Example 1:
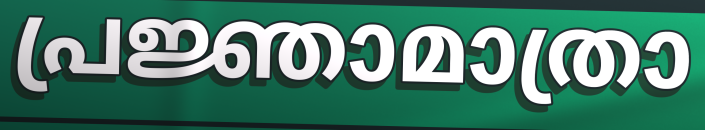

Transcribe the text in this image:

പ്രജ്ഞാമാത്രാ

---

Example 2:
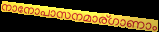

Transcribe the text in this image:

നാനോപാസനമാര്ഗാണാം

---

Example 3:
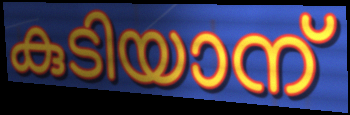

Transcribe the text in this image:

കുടിയാന്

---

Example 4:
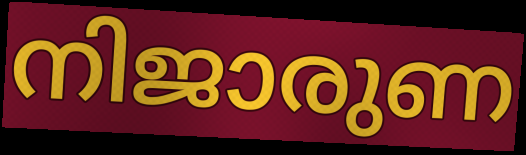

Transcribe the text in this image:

നിജാരുണ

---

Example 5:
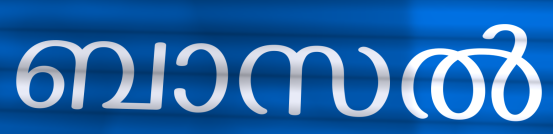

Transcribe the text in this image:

ബാസൽ